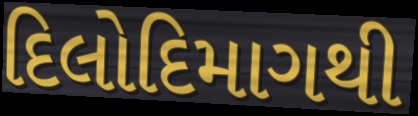
દિલોદિમાગથી